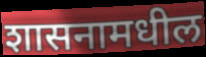
शासनामधील